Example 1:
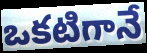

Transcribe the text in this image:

ఒకటిగానే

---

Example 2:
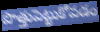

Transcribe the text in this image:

పొత్తుపెట్టుకోవడం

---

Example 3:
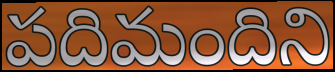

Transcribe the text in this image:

పదిమందిని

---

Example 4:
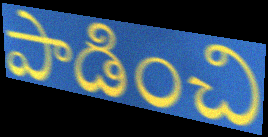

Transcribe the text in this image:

పాడించి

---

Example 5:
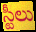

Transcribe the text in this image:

స్టీలు